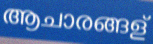
ആചാരങ്ങള്